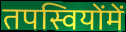
तपस्वियोंमें